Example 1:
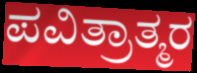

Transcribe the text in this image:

ಪವಿತ್ರಾತ್ಮರ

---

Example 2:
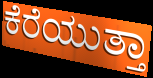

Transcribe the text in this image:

ಕೆರೆಯುತ್ತಾ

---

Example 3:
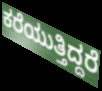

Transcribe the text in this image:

ಕರೆಯುತ್ತಿದ್ದರೆ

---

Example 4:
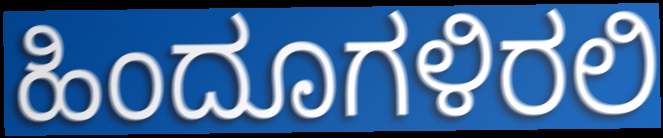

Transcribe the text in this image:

ಹಿಂದೂಗಳಿರಲಿ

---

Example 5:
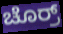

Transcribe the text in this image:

ಚೊರ್ರ್